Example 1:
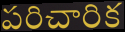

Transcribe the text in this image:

పరిచారిక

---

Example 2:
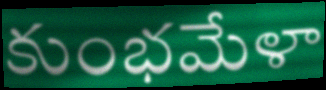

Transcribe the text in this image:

కుంభమేళా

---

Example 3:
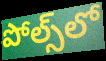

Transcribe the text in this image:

పోల్స్‌లో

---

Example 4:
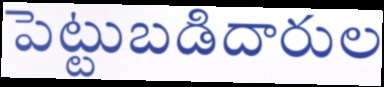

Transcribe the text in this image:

పెట్టుబడిదారుల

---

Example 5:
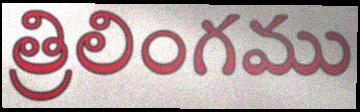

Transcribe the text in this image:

త్రిలింగము